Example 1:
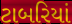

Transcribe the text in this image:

ટાબરિયાં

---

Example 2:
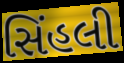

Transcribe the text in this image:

સિંહલી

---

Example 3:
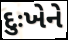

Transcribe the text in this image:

દુઃખેને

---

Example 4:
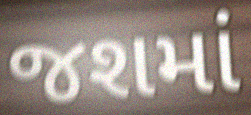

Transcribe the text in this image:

જશમાં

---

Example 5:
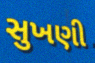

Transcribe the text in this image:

સુખણી